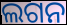
ଲଗନ